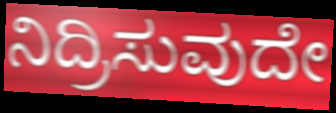
ನಿದ್ರಿಸುವುದೇ